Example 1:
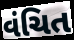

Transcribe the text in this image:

વંચિત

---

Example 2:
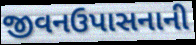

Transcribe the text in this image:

જીવનઉપાસનાની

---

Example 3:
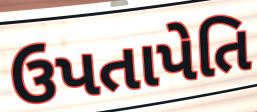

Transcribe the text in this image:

ઉપતાપેતિ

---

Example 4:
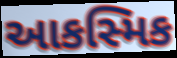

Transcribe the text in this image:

આકસ્મિક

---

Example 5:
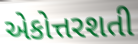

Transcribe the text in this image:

એકોત્તરશતી